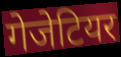
गेजेटियर